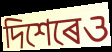
দিশেৰেও